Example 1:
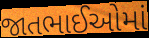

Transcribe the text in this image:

જાતભાઈઓમાં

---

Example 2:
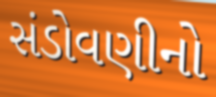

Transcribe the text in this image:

સંડોવણીનો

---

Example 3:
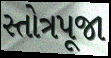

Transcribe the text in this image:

સ્તોત્રપૂજા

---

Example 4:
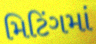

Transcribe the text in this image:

મિટિંગમાં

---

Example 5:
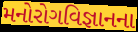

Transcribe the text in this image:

મનોરોગવિજ્ઞાનના